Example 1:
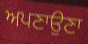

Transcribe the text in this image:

ਅਪਣਾਉਣਾ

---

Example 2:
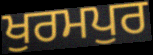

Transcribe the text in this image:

ਖੁਰਮਪੁਰ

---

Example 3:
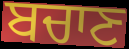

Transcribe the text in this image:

ਬਚਾਣ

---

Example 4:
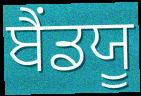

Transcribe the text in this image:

ਬੈਂਡਯੂ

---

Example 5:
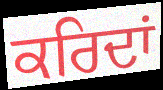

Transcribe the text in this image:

ਕਰਿਦਾਂ